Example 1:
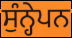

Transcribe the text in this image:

ਸੁੰਨ੍ਹੇਪਨ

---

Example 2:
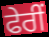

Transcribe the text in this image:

ਫੇਰੀਂ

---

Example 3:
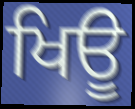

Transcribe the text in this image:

ਖਿਊ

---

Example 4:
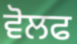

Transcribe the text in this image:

ਵੋਲਫ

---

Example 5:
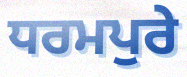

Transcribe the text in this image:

ਧਰਮਪੁਰੇ